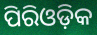
ପିରିଓଡ଼ିକ